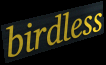
birdless